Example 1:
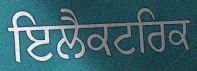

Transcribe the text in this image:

ਇਲੈਕਟਰਿਕ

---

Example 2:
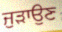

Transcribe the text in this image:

ਜੁੜਾਉਣ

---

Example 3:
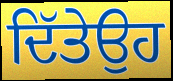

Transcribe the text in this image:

ਦਿੱਤੇਉਹ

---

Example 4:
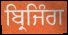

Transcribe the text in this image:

ਬ੍ਰਿਜਿੰਗ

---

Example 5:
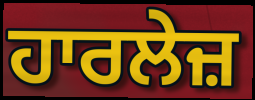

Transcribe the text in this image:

ਹਾਰਲੇਜ਼